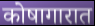
कोषागारात